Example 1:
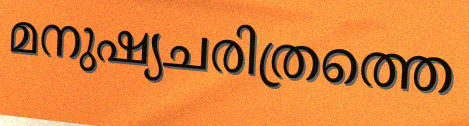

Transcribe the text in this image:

മനുഷ്യചരിത്രത്തെ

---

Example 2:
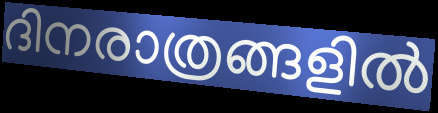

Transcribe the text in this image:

ദിനരാത്രങ്ങളിൽ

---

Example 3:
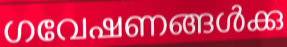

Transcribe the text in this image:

ഗവേഷണങ്ങൾക്കു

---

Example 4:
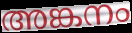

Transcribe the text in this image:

അങ്കനം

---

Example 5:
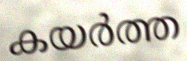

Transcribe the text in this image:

കയർത്ത